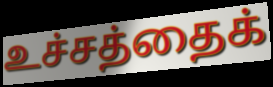
உச்சத்தைக்